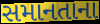
સમાનતાના